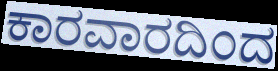
ಕಾರವಾರದಿಂದ